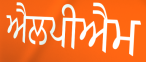
ਐਲਪੀਐਮ